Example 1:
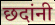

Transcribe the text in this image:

छदांनी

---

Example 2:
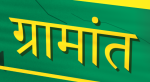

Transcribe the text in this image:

ग्रामांत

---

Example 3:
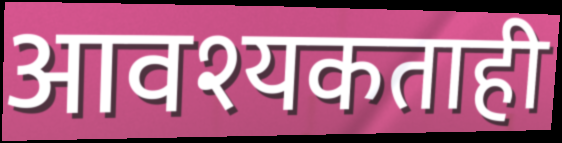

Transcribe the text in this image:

आवश्यकताही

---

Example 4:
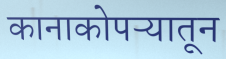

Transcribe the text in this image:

कानाकोपऱ्यातून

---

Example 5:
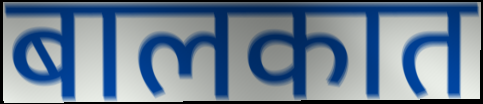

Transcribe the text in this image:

बालकात